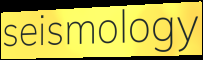
seismology